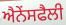
ਐਨੇਂਸਫੈਲੀ